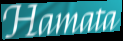
Hamata